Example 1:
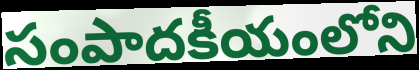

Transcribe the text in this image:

సంపాదకీయంలోని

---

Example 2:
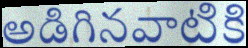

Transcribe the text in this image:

అడిగినవాటికి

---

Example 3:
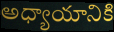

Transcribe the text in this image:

అధ్యాయానికి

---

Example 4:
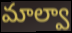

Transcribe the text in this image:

మాల్వా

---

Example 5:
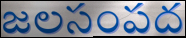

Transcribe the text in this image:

జలసంపద